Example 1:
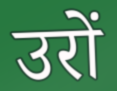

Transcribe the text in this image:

उरों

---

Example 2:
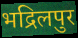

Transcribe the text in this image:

भद्रिलपुर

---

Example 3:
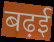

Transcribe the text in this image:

बढ़ई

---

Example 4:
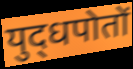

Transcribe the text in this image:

युद्धपोतों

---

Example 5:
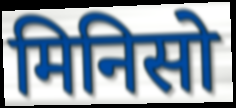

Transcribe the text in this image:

मिनिसो